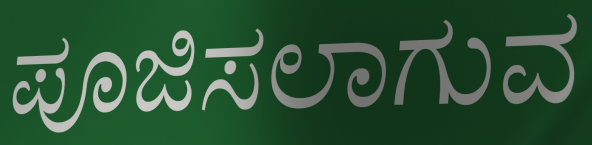
ಪೂಜಿಸಲಾಗುವ